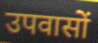
उपवासों